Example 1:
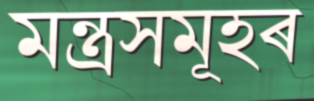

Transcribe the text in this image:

মন্ত্ৰসমূহৰ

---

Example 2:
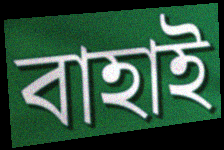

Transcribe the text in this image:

বাহাই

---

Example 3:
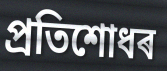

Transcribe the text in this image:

প্ৰতিশোধৰ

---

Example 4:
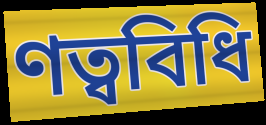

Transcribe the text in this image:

ণত্ববিধি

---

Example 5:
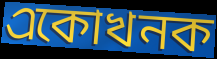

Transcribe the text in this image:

একোখনক